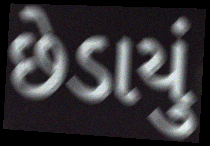
છેડાયું